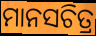
ମାନସଚିତ୍ର